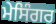
ਮੇਸਿੰਗਰ